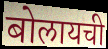
बोलायची